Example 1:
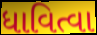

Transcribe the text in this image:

ધાવિત્વા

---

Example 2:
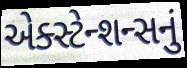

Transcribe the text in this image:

એક્સ્ટેન્શન્સનું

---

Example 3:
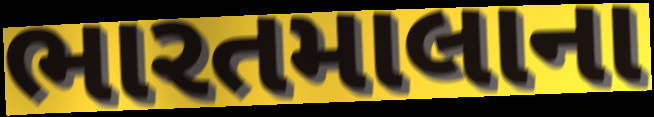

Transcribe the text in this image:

ભારતમાલાના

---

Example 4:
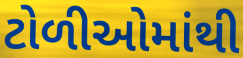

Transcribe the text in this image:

ટોળીઓમાંથી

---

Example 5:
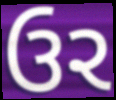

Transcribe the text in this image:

ઉર